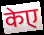
केए